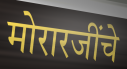
मोरारजींचे